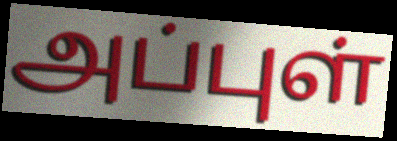
அப்புள்